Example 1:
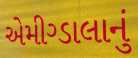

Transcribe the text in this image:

એમીગ્ડાલાનું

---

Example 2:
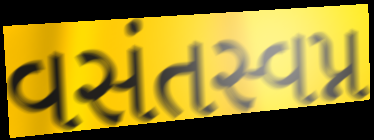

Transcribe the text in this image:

વસંતસ્વપ્ન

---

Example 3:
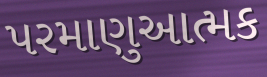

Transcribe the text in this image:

પરમાણુઆત્મક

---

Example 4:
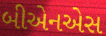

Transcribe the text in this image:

બીએનએસ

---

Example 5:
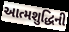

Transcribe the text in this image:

આત્મશુદ્ધિની